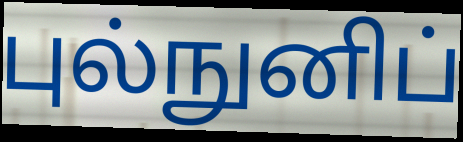
புல்நுனிப்